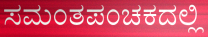
ಸಮಂತಪಂಚಕದಲ್ಲಿ